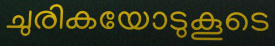
ചുരികയോടുകൂടെ